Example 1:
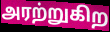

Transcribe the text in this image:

அரற்றுகிற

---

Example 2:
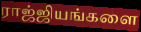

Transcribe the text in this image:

ராஜ்ஜியங்களை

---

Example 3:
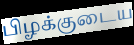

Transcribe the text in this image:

பிழக்குடைய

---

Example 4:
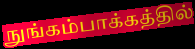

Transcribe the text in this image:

நுங்கம்பாக்கத்தில்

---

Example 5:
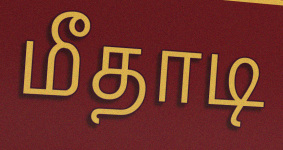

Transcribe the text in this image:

மீதாடி